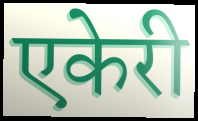
एकेरी